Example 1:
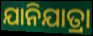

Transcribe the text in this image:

ଯାନିଯାତ୍ରା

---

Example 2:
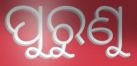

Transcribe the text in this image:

ପୁରୁଣୁ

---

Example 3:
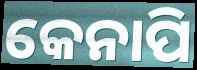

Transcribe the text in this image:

କେନାପି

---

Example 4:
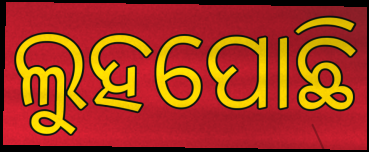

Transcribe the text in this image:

ଲୁହପୋଛି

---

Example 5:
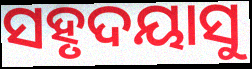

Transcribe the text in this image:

ସହୃଦୟାସୁ